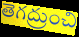
తెగద్రుంచి